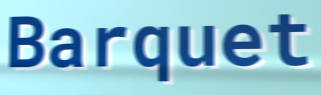
Barquet